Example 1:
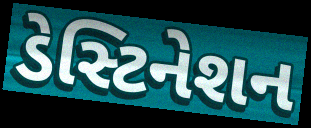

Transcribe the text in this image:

ડેસ્ટિનેશન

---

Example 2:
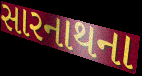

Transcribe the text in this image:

સારનાથના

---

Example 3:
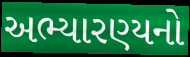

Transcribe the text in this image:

અભ્યારણ્યનો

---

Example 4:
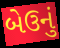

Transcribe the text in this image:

બેઉનું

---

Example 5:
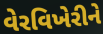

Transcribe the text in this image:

વેરવિખેરીને